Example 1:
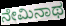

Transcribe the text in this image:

ನೇಮಿನಾಥ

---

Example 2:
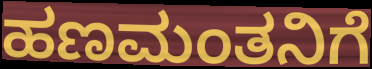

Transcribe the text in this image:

ಹಣಮಂತನಿಗೆ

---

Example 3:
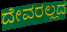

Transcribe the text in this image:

ದೇವರಲ್ಲದ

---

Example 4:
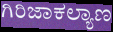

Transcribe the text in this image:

ಗಿರಿಜಾಕಲ್ಯಾಣ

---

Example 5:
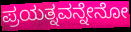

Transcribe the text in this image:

ಪ್ರಯತ್ನವನ್ನೇನೋ